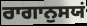
ਰਾਗਾਨੁਸਯਂ